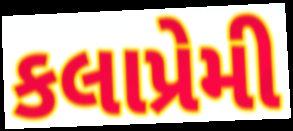
કલાપ્રેમી